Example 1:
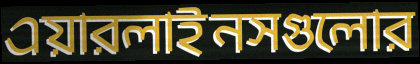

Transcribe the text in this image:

এয়ারলাইনসগুলোর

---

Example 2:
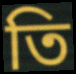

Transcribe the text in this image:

তি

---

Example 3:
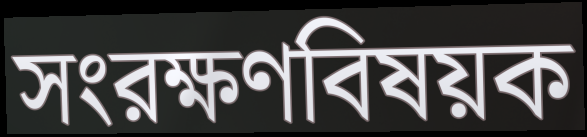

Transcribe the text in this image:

সংরক্ষণবিষয়ক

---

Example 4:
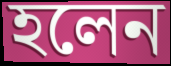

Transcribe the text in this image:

হলেন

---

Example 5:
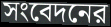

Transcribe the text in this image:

সংবেদনের